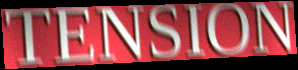
TENSION